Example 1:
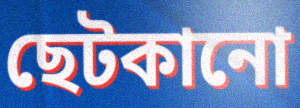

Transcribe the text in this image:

ছেটকানো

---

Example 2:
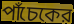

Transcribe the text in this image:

পাঁচেকের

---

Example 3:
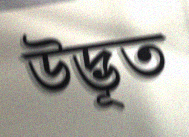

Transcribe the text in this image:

উদ্ভূত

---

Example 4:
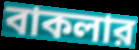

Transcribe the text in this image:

বাকলার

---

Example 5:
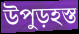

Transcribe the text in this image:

উপুড়হস্ত